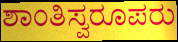
ಶಾಂತಿಸ್ವರೂಪರು